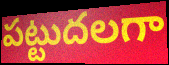
పట్టుదలగా